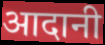
आदानी